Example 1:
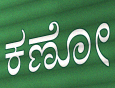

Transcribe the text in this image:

ಕಣೋ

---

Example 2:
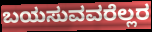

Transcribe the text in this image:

ಬಯಸುವವರೆಲ್ಲರ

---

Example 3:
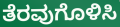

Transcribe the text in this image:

ತೆರವುಗೊಳಿಸಿ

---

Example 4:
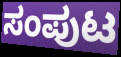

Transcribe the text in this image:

ಸಂಪುಟ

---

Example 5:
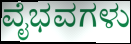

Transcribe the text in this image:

ವೈಭವಗಳು